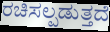
ರಚಿಸಲ್ಪಡುತ್ತದೆ